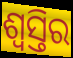
ଶ୍ୱସ୍ତିର